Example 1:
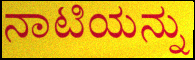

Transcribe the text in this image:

ನಾಟಿಯನ್ನು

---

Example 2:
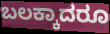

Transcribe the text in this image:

ಬಲಕ್ಕಾದರೂ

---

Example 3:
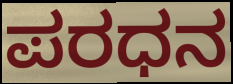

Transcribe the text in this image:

ಪರಧನ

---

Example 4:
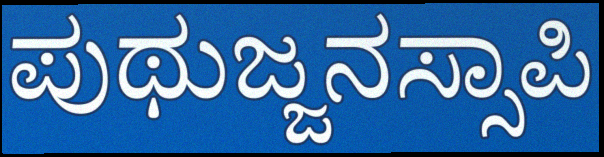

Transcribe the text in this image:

ಪುಥುಜ್ಜನಸ್ಸಾಪಿ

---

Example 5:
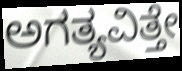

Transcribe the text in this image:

ಅಗತ್ಯವಿತ್ತೇ